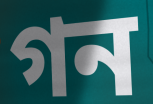
গন